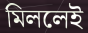
মিললেই